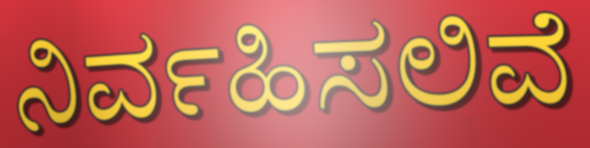
ನಿರ್ವಹಿಸಲಿವೆ